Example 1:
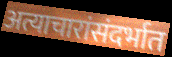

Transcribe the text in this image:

अत्याचारांसंदर्भात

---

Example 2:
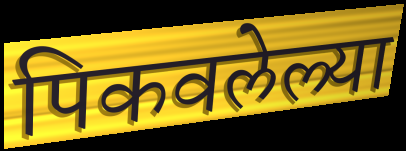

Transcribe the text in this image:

पिकवलेल्या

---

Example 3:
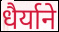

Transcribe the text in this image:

धैर्याने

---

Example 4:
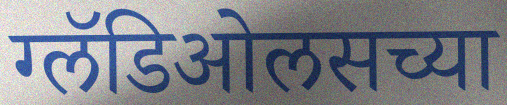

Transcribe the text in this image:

ग्लॅडिओलसच्या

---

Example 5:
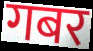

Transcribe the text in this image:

गबर